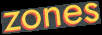
zones